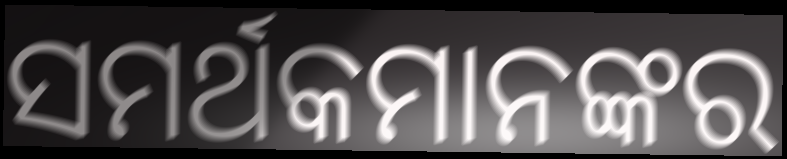
ସମର୍ଥକମାନଙ୍କର